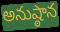
అనుష్ఠాన